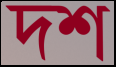
দশ